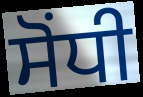
ਸੋਂਧੀ